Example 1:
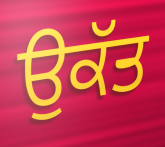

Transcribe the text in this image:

ਉਕੱਤ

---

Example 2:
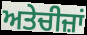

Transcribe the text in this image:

ਅਤੇਚੀਜ਼ਾਂ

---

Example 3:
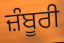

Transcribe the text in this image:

ਜ਼ੰਬੂਰੀ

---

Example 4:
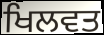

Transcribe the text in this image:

ਖਿਲਵਤ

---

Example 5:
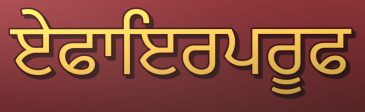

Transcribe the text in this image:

ਏਫਾਇਰਪਰੂਫ